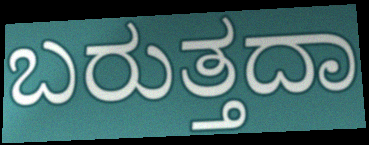
ಬರುತ್ತದಾ